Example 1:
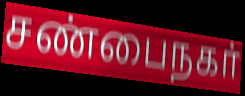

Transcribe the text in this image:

சண்பைநகர்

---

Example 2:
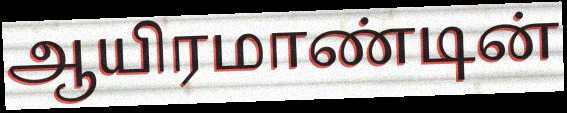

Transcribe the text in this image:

ஆயிரமாண்டின்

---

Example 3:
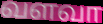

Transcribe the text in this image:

வளவா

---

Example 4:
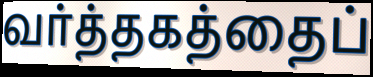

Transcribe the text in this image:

வர்த்தகத்தைப்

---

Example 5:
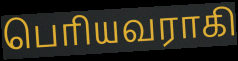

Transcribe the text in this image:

பெரியவராகி